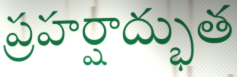
ప్రహర్షాద్భుత